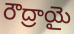
రౌద్రాయై